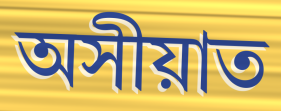
অসীয়াত